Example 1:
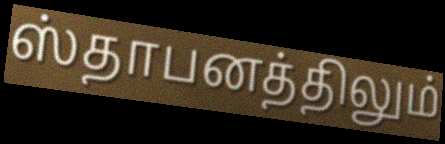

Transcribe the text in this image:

ஸ்தாபனத்திலும்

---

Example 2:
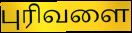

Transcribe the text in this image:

புரிவளை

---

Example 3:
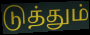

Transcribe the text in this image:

டுத்தும்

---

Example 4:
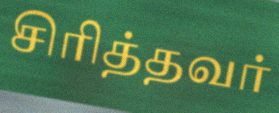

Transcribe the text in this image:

சிரித்தவர்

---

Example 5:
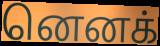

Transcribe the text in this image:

னெனக்